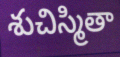
శుచిస్మితా